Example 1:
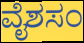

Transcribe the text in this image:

ವೈಶಸಂ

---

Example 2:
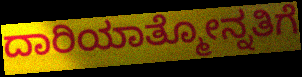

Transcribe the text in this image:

ದಾರಿಯಾತ್ಮೋನ್ನತಿಗೆ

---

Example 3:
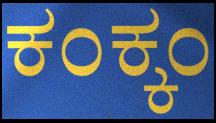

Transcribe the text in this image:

ಕಂಕ್ಕಂ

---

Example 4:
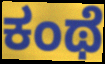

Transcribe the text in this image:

ಕಂಥೆ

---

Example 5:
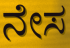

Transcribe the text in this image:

ನೇಸ